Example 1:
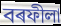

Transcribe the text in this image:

বৰফীলা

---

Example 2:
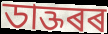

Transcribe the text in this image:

ডাক্তৰৰ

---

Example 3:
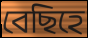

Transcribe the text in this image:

বেছিহে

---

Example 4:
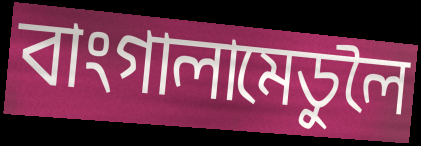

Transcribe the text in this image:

বাংগালামেডুলৈ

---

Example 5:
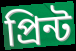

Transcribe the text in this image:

প্ৰিন্ট